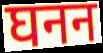
घनन